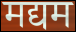
मद्यम